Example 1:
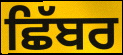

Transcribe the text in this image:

ਛਿੱਬਰ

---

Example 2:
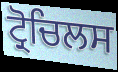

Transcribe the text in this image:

ਟ੍ਰੋਚਿਲਸ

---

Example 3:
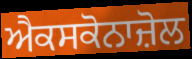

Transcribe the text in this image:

ਐਕਸਕੋਨਾਜ਼ੋਲ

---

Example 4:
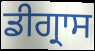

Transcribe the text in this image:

ਡੀਗ੍ਰਾਸ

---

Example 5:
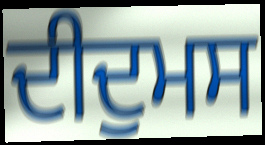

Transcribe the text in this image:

ਦੀਦੁਮਸ